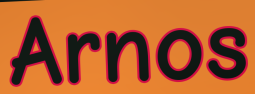
Arnos